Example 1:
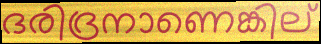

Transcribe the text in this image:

ദരിദ്രനാണെങ്കില്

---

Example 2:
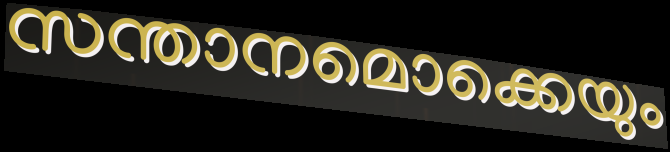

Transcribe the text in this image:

സന്താനമൊക്കെയും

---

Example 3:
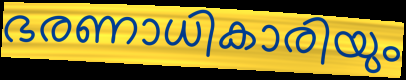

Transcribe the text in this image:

ഭരണാധികാരിയും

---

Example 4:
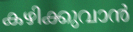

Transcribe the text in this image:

കഴിക്കുവാൻ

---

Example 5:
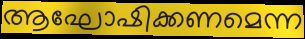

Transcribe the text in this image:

ആഘോഷിക്കണമെന്ന